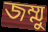
জম্মু